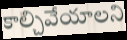
కాల్చివేయాలని